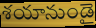
శయానుండై